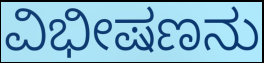
ವಿಭೀಷಣನು